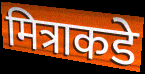
मित्राकडे